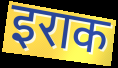
इराक